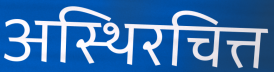
अस्थिरचित्त